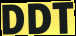
DDT